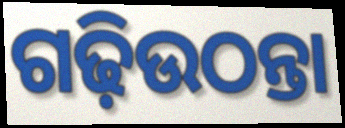
ଗଢ଼ିଉଠନ୍ତା